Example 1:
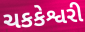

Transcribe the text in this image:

ચકકેશ્વરી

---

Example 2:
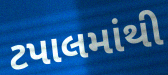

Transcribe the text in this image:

ટપાલમાંથી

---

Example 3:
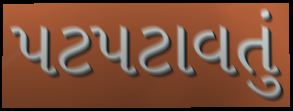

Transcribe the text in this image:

પટપટાવતું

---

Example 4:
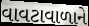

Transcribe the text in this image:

વાવટાવાળાને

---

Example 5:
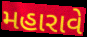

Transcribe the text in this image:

મહારાવે